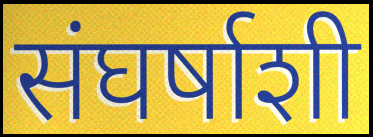
संघर्षाशी